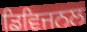
ਡਿਵਿਜਨਲ